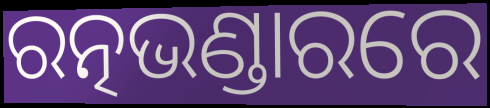
ରତ୍ନଭଣ୍ଡାରରେ